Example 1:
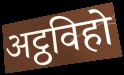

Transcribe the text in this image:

अट्ठविहो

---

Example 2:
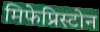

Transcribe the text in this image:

मिफेप्रिस्टोन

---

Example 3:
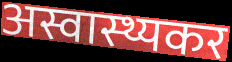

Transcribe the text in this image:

अस्वास्थ्यकर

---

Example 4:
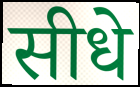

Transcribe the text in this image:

सीधे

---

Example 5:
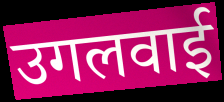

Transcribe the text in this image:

उगलवाई